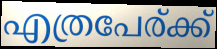
എത്രപേര്ക്ക്